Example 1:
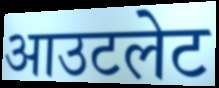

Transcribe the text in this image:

आउटलेट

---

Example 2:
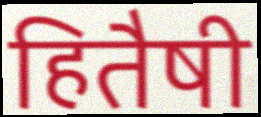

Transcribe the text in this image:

हितैषी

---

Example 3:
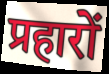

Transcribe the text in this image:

प्रहारों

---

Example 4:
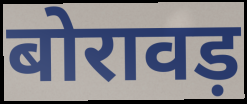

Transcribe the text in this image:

बोरावड़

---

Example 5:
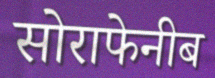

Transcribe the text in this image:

सोराफेनीब